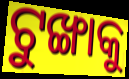
ଟୁଙ୍ଖାକୁ